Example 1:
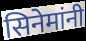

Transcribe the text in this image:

सिनेमांनी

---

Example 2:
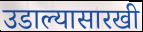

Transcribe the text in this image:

उडाल्यासारखी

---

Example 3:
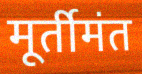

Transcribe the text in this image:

मूर्तीमंत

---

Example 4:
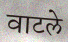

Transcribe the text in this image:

वाटले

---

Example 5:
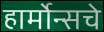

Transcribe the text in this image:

हार्मोन्सचे